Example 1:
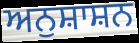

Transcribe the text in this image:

ਅਨੁਸ਼ਾਸ਼ਨ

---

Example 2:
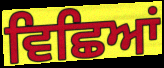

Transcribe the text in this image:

ਵਿਛਿਆਂ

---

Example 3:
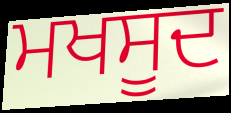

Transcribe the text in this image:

ਮਖਸੂਦ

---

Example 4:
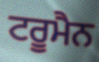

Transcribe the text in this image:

ਟਰੂਮੈਨ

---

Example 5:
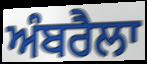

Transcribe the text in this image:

ਅੰਬਰੈਲਾ